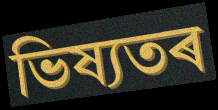
ভিষ্যতৰ